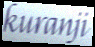
kuranji